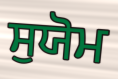
ਸੁਯੋਮ